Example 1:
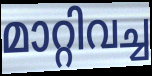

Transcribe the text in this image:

മാറ്റിവച്ച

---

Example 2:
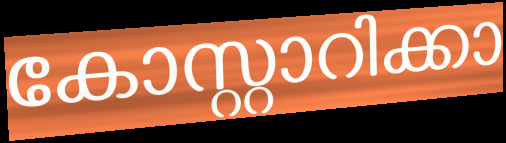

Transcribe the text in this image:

കോസ്റ്റാറിക്കാ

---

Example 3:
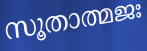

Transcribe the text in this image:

സൂതാത്മജഃ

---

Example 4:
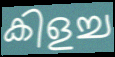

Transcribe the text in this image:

കിളച്ച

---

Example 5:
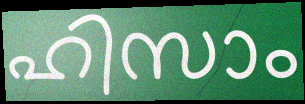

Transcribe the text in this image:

ഹിസാം